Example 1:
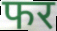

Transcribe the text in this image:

फर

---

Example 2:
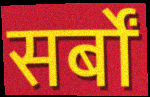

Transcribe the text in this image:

सर्बों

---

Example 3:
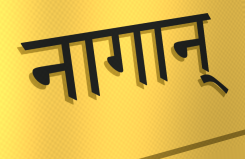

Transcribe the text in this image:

नागान्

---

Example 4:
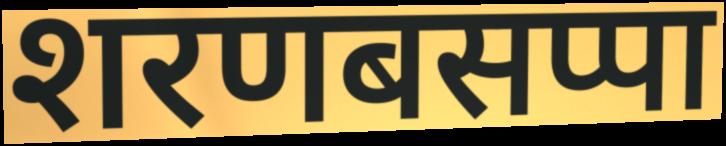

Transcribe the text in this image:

शरणबसप्पा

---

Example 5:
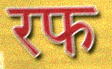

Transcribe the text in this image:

रफ